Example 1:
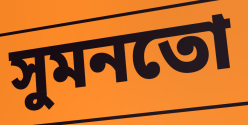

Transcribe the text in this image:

সুমনতো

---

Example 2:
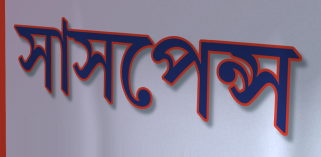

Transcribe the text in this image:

সাসপেন্স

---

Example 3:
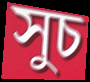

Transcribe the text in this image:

সুচ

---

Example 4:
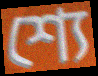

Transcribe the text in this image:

শ্যে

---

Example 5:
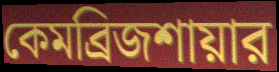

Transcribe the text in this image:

কেমব্রিজশায়ার